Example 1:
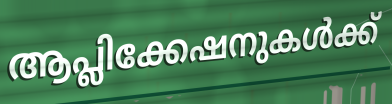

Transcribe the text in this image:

ആപ്ലിക്കേഷനുകൾക്ക്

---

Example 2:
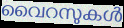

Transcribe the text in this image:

വൈറസുകൾ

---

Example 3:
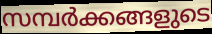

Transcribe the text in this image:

സമ്പർക്കങ്ങളുടെ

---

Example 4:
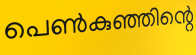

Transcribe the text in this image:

പെൺകുഞ്ഞിന്റെ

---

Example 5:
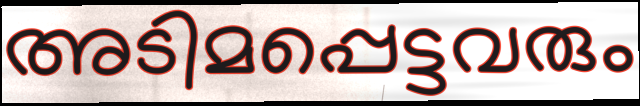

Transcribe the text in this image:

അടിമപ്പെട്ടവരും